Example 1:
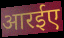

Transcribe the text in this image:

आरईए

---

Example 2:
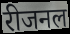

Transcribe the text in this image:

रीजनल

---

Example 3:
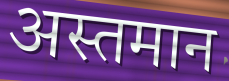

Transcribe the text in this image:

अस्तमान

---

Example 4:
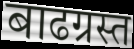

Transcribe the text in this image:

बाढग्रस्त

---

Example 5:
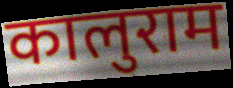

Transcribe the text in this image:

कालुराम